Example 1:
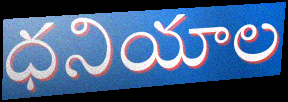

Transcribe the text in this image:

ధనియాల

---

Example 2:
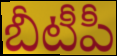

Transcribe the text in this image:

బీటీపీ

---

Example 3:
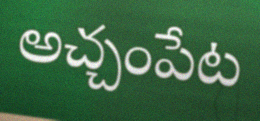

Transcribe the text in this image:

అచ్చంపేట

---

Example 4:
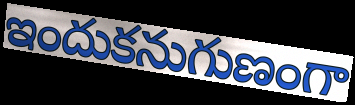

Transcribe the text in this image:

ఇందుకనుగుణంగా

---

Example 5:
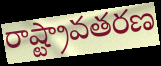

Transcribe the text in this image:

రాష్ట్రావతరణ